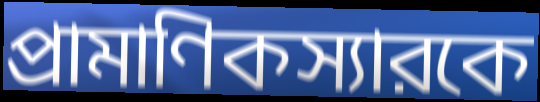
প্রামাণিকস্যারকে